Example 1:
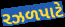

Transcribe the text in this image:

રઝળપાટે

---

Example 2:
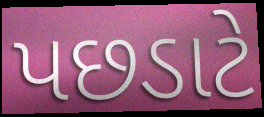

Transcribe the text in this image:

પછડાટે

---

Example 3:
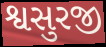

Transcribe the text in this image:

શ્વસુરજી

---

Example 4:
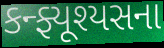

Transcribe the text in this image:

કન્ફ્યૂશ્યસના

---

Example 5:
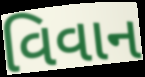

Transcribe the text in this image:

વિવાન